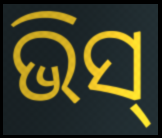
ଭିସ୍